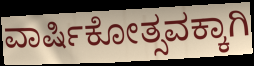
ವಾರ್ಷಿಕೋತ್ಸವಕ್ಕಾಗಿ